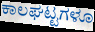
ಕಾಲಘಟ್ಟಗಳೂ